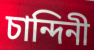
চান্দিনী